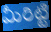
మీరిట్టి